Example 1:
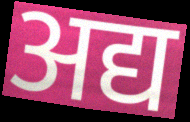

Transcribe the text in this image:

अद्य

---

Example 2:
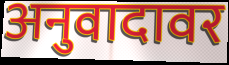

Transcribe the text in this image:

अनुवादावर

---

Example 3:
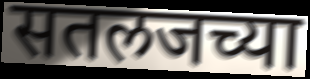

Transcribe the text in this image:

सतलजच्या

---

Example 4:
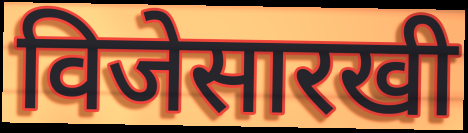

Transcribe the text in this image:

विजेसारखी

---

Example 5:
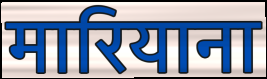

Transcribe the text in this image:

मारियाना